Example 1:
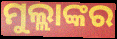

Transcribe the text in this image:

ମୁଲ୍ଲାଙ୍କର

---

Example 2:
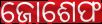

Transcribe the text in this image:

ଜୋଶେଫ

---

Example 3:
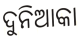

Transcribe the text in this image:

ଦୁନିଆକା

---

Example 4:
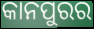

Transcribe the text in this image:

କାନପୁରର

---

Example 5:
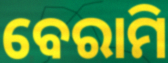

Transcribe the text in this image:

ବେରାମି